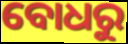
ବୋଧରୁ